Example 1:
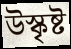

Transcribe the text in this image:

উস্কৃষ্ট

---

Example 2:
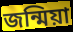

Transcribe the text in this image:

জন্মিয়া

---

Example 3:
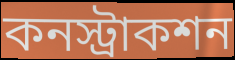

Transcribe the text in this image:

কনস্ট্রাকশন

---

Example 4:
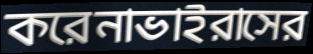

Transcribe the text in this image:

করেনাভাইরাসের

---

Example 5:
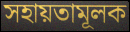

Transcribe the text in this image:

সহায়তামূলক